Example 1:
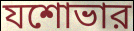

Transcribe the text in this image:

যশোভার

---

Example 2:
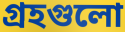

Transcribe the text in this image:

গ্রহগুলো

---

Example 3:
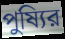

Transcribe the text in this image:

পুষ্যির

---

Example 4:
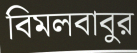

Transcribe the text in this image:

বিমলবাবুর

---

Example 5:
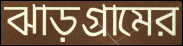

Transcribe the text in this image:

ঝাড়গ্রামের